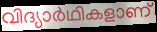
വിദ്യാർഥികളാണ്